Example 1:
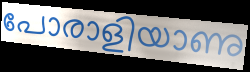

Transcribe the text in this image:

പോരാളിയാണു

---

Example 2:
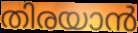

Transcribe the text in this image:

തിരയാൻ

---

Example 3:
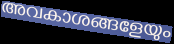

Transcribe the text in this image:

അവകാശങ്ങളേയും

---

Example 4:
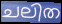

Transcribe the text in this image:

ചലിത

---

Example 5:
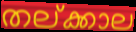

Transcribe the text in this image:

തല്ക്കാല